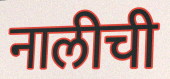
नालीची